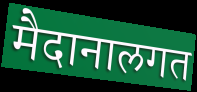
मैदानालगत